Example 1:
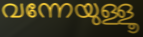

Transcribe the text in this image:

വന്നേയുള്ളൂ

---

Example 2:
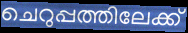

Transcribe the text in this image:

ചെറുപ്പത്തിലേക്ക്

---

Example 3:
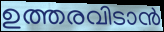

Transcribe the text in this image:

ഉത്തരവിടാൻ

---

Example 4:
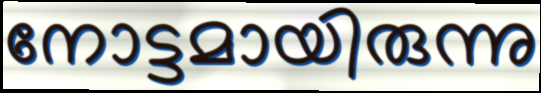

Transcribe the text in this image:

നോട്ടമായിരുന്നു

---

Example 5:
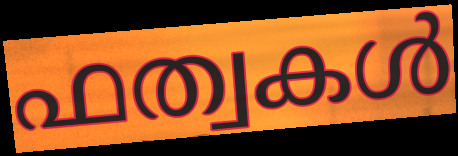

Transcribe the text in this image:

ഫത്വകൾ